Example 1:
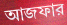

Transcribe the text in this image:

আজফার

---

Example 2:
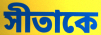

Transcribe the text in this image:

সীতাকে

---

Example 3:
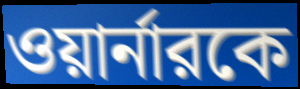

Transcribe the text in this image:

ওয়ার্নারকে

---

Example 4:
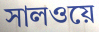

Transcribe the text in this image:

সালওয়ে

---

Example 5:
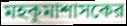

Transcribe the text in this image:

মহকুমাশাসকের